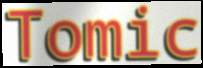
Tomic